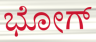
ಭೋಗ್